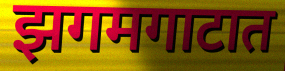
झगमगाटात